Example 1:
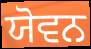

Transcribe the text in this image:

ਯੋਵਨ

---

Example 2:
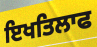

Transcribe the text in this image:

ਇਖਤਿਲਾਫ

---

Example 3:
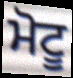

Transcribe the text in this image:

ਮੋਟੂ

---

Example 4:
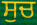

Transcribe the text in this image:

ਸੁਚ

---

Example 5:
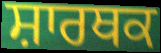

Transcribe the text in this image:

ਸ਼ਾਰਥਕ